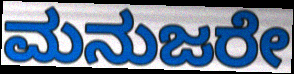
ಮನುಜರೇ